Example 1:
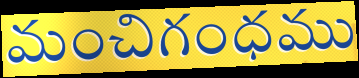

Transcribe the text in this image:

మంచిగంధము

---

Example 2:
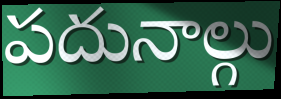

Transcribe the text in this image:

పదునాల్గు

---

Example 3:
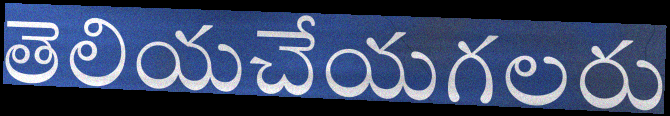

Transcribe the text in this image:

తెలియచేయగలరు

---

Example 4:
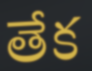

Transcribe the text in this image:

తేక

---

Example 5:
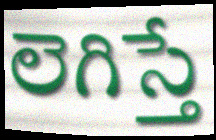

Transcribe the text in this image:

లెగిస్తే